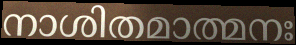
നാശിതമാത്മനഃ